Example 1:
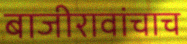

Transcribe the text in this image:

बाजीरावांचाच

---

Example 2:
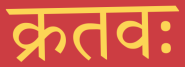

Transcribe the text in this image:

क्रतवः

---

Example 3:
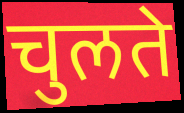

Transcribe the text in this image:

चुलते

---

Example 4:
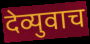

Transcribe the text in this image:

देव्युवाच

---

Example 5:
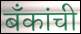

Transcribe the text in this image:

बँकांची